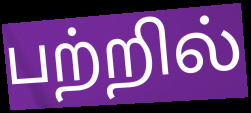
பற்றில்